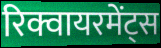
रिक्वायरमेंट्स